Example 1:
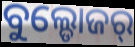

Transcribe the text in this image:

ବୁଲ୍ଡୋଜର୍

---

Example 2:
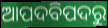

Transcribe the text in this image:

ଆପଦବିପଦରୁ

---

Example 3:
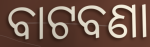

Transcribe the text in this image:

ବାଟବଣା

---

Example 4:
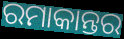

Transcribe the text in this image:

ରମାକାନ୍ତର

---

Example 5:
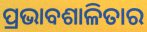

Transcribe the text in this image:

ପ୍ରଭାବଶାଳିତାର